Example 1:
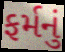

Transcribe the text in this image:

ફર્મનું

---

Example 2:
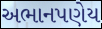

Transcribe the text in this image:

અભાનપણેય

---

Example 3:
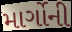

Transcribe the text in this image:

માર્ગોની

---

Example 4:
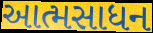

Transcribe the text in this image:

આત્મસાધન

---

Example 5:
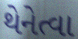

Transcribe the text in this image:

થેનેત્વા